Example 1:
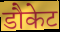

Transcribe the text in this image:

डौकेट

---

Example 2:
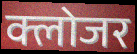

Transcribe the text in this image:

क्लोजर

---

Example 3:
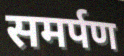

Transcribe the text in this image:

समर्पण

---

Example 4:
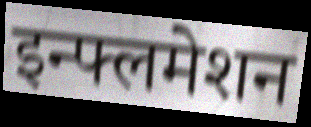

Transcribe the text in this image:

इन्फ्लमेशन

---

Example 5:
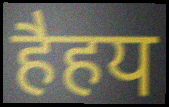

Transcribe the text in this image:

हैहय